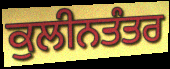
ਕੁਲੀਨਤੰਤਰ